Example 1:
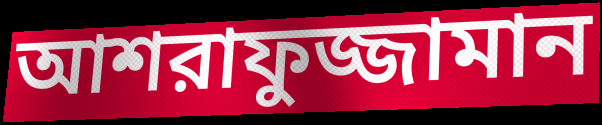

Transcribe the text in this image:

আশরাফুজ্জামান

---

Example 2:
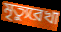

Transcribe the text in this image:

মৃত্যুরেখা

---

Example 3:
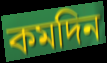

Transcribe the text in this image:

কমদিন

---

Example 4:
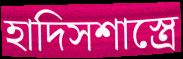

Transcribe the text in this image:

হাদিসশাস্ত্রে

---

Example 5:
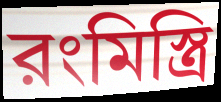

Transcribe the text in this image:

রংমিস্ত্রি